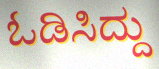
ಓಡಿಸಿದ್ದು